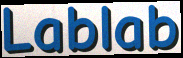
Lablab